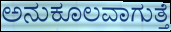
ಅನುಕೂಲವಾಗುತ್ತೆ